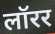
लॉरर